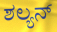
ಶಲ್ಯನ್